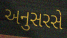
અનુસરસે